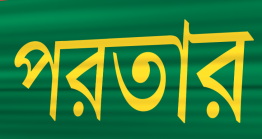
পরতার